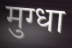
मुग्धा